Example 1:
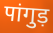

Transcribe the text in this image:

पांगुड़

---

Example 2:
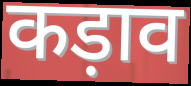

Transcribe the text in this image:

कड़ाव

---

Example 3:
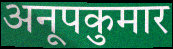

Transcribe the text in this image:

अनूपकुमार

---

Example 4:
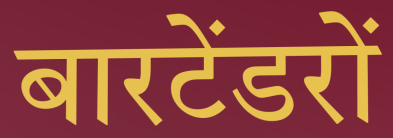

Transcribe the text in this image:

बारटेंडरों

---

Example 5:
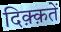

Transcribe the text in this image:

दिक़्क़तें